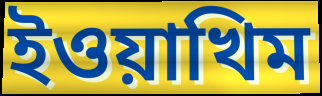
ইওয়াখিম